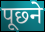
पूछ्ने